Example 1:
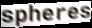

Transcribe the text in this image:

spheres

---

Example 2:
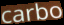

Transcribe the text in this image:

carbo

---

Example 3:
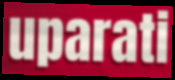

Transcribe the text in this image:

uparati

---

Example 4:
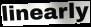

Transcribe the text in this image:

linearly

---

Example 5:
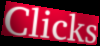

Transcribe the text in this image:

Clicks